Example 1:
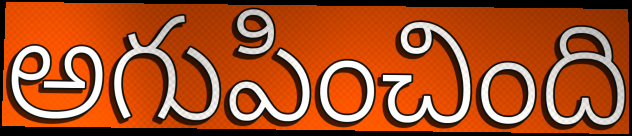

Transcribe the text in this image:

అగుపించింది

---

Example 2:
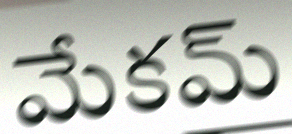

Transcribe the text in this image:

మేకమ్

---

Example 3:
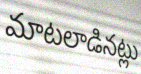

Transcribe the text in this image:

మాటలాడినట్లు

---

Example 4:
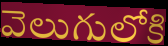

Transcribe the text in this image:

వెలుగులోకి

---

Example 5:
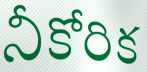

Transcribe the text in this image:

నీకోరిక